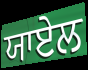
ਯਾਏਲ